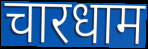
चारधाम